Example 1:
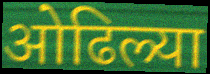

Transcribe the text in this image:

ओढिल्या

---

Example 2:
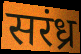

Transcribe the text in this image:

सरंध्र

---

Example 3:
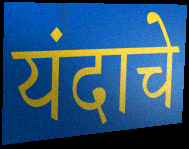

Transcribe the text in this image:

यंदाचे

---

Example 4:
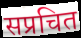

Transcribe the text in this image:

सप्रचित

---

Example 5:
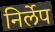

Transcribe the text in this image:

निर्लेप